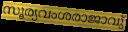
സൂര്യവംശരാജാവു്